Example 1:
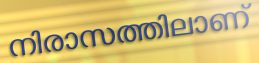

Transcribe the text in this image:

നിരാസത്തിലാണ്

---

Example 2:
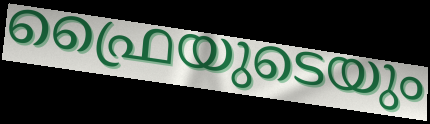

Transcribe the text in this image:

ഫ്രൈയുടെയും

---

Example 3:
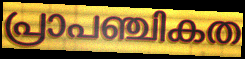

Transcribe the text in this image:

പ്രാപഞ്ചികത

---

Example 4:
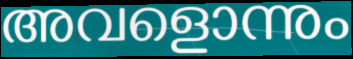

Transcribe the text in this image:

അവളൊന്നും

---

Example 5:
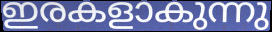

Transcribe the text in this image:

ഇരകളാകുന്നു